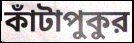
কাঁটাপুকুর